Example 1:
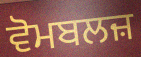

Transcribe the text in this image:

ਵੋਮਬਲਜ਼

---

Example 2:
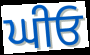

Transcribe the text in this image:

ਘੀਓ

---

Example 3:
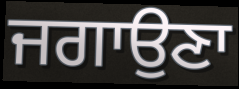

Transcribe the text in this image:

ਜਗਾਉਣਾ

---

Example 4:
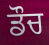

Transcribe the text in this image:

ਡੌਚ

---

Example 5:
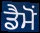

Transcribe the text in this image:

ਡੈਮੋਂ